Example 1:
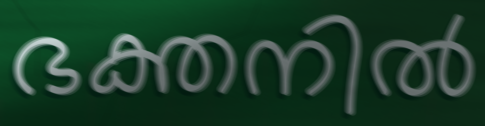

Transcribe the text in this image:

ഭക്തനിൽ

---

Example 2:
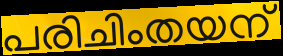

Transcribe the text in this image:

പരിചിംതയന്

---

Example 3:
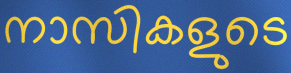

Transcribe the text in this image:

നാസികളുടെ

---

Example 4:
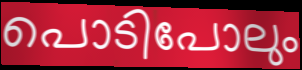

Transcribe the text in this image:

പൊടിപോലും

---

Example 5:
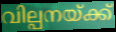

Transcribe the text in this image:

വില്പനയ്ക്ക്